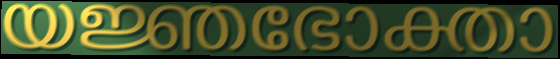
യജ്ഞഭോക്താ